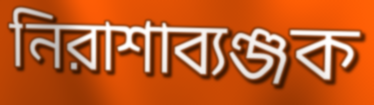
নিরাশাব্যঞ্জক